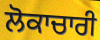
ਲੋਕਾਚਾਰੀ